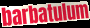
barbatulum